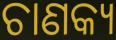
ଚାଣକ୍ଯ